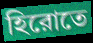
হিরোতে